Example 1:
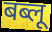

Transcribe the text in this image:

बब्लू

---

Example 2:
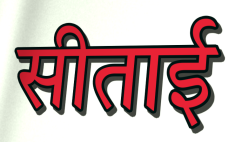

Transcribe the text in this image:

सीताई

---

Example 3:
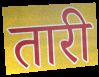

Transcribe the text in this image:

तारी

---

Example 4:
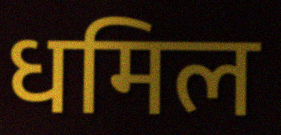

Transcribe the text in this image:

धमिल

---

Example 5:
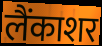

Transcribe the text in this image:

लैंकाशर